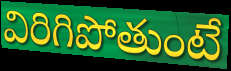
విరిగిపోతుంటే